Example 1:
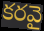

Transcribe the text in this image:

కరవై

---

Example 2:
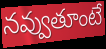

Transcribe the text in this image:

నవ్వుతూంటే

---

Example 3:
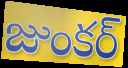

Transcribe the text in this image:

జుంకర్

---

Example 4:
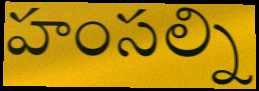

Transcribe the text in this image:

హంసల్ని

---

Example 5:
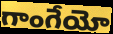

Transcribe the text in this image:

గాంగేయో